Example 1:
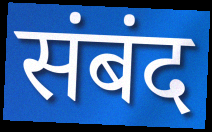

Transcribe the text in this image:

संबंद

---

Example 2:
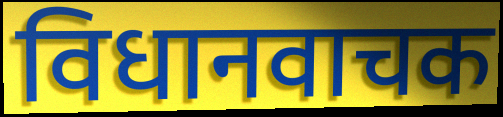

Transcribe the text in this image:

विधानवाचक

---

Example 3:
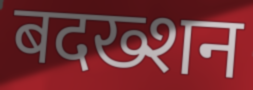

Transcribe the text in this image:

बदख्शन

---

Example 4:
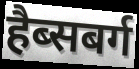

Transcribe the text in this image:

हैब्सबर्ग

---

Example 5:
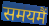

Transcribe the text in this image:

समयमैं